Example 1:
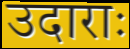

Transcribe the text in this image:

उदाराः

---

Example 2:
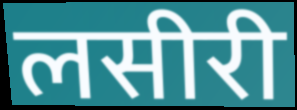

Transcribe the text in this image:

लसीरी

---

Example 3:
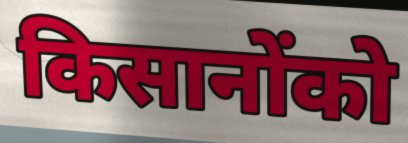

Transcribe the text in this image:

किसानोंको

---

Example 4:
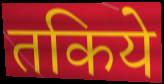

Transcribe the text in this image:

तकिये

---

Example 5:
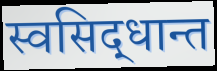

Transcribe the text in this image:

स्वसिद्धान्त